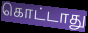
கொட்டாது